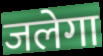
जलेगा